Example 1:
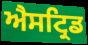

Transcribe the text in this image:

ਐਸਟ੍ਰਿਡ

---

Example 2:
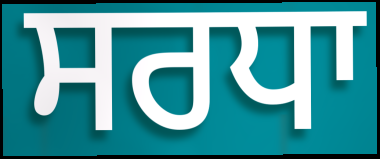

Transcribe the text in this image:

ਸਰਧਾ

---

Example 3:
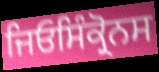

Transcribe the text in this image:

ਜਿਓਸਿੰਕ੍ਰੋਨਸ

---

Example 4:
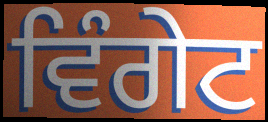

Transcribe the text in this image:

ਵਿੰਗੇਟ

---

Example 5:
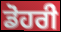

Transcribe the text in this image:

ਡੋਹਰੀ